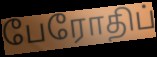
பேரோதிப்